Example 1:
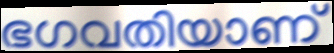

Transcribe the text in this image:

ഭഗവതിയാണ്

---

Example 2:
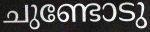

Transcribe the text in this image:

ചുണ്ടോടു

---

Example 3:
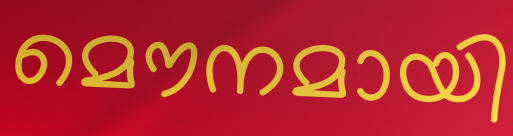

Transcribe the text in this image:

മൌനമായി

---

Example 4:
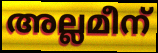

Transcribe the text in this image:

അല്ലമീന്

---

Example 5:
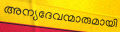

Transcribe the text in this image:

അന്യദേവന്മാരുമായി